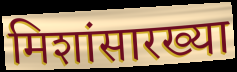
मिशांसारख्या